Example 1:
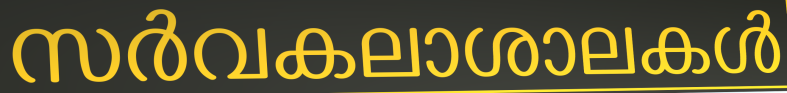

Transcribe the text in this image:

സർവകലാശാലകൾ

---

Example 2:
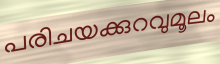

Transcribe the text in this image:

പരിചയക്കുറവുമൂലം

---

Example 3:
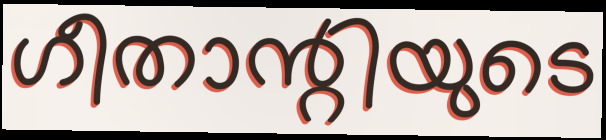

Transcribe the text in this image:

ഗീതാന്റിയുടെ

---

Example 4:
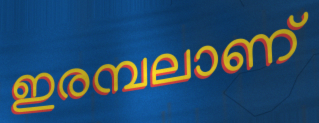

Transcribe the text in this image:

ഇരമ്പലാണ്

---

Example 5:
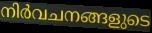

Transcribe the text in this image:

നിർവചനങ്ങളുടെ